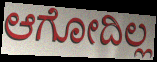
ಆಗೋದಿಲ್ಲ